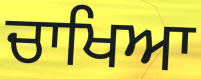
ਚਾਖਿਆ